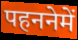
पहननेमें